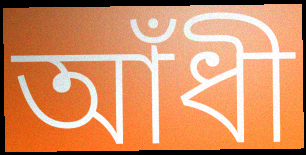
আঁধী